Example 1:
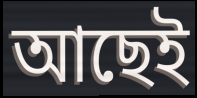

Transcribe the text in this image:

আছেই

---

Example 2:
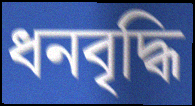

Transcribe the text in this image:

ধনবৃদ্ধি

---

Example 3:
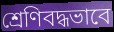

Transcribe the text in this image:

শ্রেণিবদ্ধভাবে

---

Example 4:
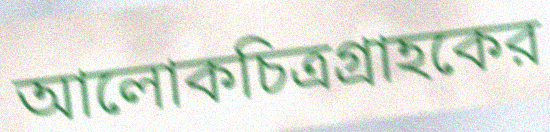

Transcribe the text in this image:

আলোকচিত্রগ্রাহকের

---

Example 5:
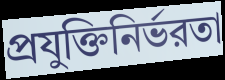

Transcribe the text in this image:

প্রযুক্তিনির্ভরতা